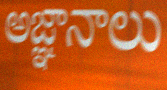
అజ్ఞానాలు